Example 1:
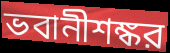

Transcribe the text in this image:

ভবানীশঙ্কর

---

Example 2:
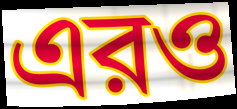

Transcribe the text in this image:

এরও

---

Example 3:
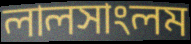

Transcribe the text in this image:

লালসাংলম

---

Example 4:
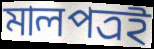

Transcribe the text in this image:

মালপত্রই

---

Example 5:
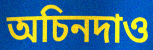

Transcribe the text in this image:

অচিনদাও